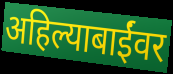
अहिल्याबाईंवर